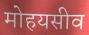
मोहयसीव